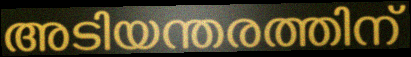
അടിയന്തരത്തിന്